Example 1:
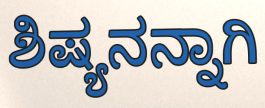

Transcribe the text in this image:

ಶಿಷ್ಯನನ್ನಾಗಿ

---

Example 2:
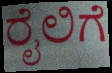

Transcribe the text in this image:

ರೈಲಿಗೆ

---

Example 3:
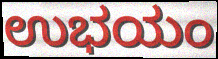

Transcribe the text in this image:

ಉಭಯಂ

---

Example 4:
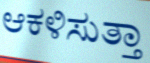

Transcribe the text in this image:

ಆಕಳಿಸುತ್ತಾ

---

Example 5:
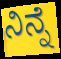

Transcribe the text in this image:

ನಿನ್ನೆ